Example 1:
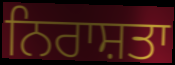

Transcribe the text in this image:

ਨਿਰਾਸ਼ਤਾ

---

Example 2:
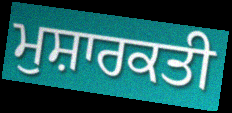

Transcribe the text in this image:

ਮੁਸ਼ਾਰਕਤੀ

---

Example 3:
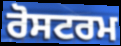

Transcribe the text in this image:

ਰੋਸਟਰਮ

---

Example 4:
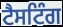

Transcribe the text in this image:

ਟੈਸਟਿੰਗ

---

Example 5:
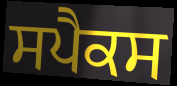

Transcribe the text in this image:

ਸਪੈਕਸ